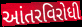
આંતરવિરોધી